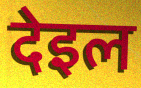
देइल